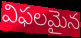
విఫలమైన